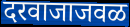
दरवाजाजवळ